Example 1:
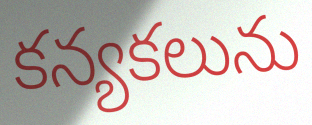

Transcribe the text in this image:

కన్యకలును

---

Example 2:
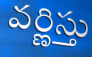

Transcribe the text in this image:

వర్ణిస్తు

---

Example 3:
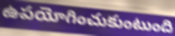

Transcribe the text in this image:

ఉపయోగించుకుంటుంది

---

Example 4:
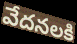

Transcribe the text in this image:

వేదనలకి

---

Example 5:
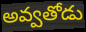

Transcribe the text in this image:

అవ్వతోడు